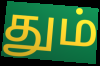
தும்